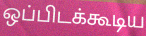
ஒப்பிடக்கூடிய